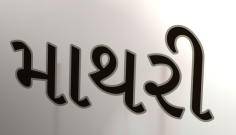
માથરી